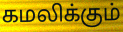
கமலிக்கும்